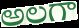
అలగా